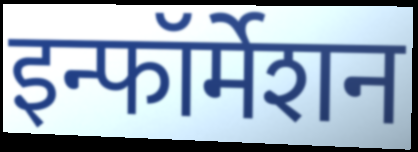
इन्फॉर्मेशन